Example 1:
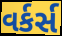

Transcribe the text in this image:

વર્કર્સ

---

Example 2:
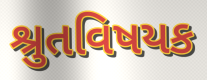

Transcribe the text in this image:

શ્રુતવિષયક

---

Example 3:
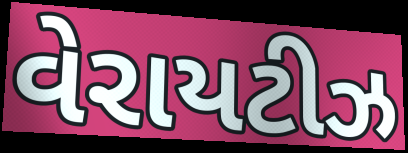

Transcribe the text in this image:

વેરાયટીઝ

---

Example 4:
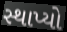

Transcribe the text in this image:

સ્થાપ્યો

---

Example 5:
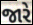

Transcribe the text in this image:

જારે